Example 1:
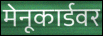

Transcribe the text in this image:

मेनूकार्डवर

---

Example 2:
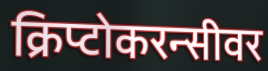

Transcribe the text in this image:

क्रिप्टोकरन्सीवर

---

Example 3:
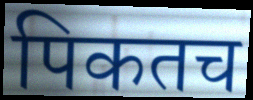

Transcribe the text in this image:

पिकतच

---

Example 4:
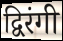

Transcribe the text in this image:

द्विरंगी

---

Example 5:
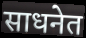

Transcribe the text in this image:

साधनेत